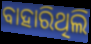
ବାହାରିଥିଲି